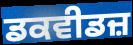
ਡਕਵੀਡਜ਼